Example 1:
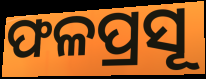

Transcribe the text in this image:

ଫଳପ୍ରସୂ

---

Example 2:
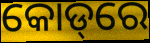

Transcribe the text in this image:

କୋଡ୍‌ରେ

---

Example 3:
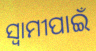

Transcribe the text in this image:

ସ୍ୱାମୀପାଇଁ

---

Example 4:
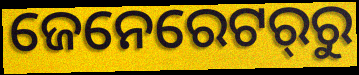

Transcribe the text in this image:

ଜେନେରେଟର୍‌ରୁ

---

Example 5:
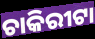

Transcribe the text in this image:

ଚାକିରୀଟା